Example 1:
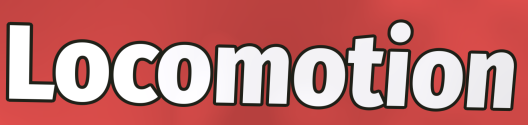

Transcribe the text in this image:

Locomotion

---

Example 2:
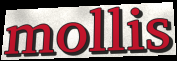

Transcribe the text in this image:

mollis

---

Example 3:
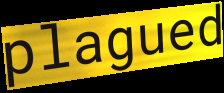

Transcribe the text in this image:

plagued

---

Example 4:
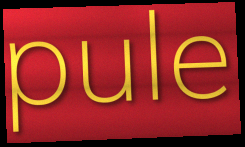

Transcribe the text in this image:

pule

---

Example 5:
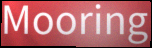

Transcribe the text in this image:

Mooring